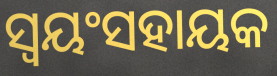
ସ୍ଵୟଂସହାୟକ